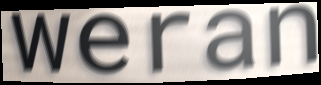
weran